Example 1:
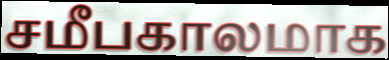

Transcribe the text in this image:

சமீபகாலமாக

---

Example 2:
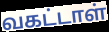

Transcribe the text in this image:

வகட்டாள்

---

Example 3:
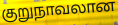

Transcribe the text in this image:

குறுநாவலான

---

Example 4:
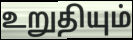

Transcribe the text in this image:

உறுதியும்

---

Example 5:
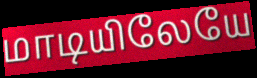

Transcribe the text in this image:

மாடியிலேயே